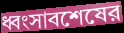
ধ্বংসাবশেষের